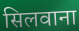
सिलवाना